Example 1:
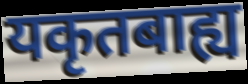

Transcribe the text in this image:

यकृतबाह्य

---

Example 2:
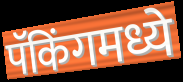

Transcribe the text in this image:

पॅकिंगमध्ये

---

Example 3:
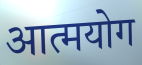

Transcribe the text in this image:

आत्मयोग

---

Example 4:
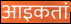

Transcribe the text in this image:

आइकतां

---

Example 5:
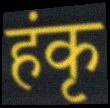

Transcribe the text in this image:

हंकृ